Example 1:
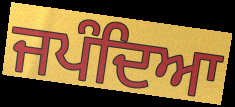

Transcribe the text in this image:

ਜਪੰਦਿਆ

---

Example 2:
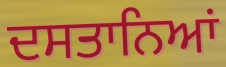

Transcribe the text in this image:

ਦਸਤਾਨਿਆਂ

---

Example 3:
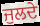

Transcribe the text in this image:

ਜੁਲਦੇ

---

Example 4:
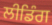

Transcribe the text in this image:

ਲੀਡਿੰਗ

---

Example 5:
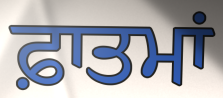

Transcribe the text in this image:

ਫ਼ਾਤਮਾਂ